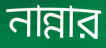
নান্নার